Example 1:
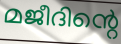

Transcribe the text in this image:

മജീദിന്റെ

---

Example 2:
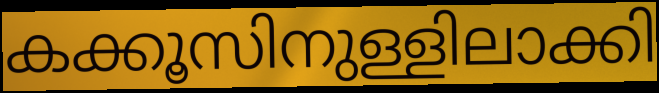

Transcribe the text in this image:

കക്കൂസിനുള്ളിലാക്കി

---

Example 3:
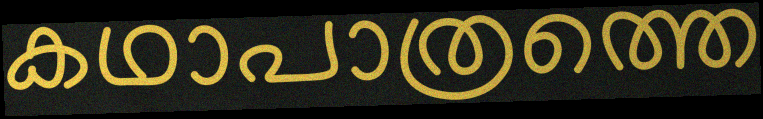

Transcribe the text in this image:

കഥാപാത്രത്തെ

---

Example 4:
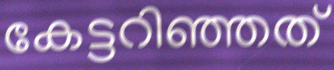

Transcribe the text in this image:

കേട്ടറിഞ്ഞത്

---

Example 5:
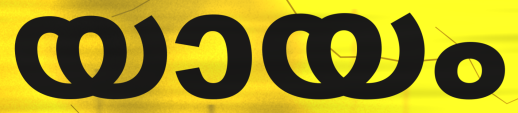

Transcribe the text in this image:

യായം